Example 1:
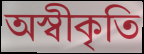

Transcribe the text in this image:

অস্বীকৃতি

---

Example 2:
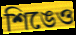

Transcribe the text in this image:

শিঙেও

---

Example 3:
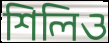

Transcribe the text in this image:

শিলিও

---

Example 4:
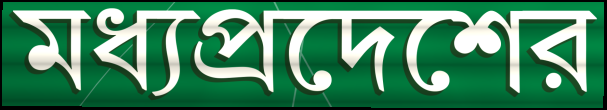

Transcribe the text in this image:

মধ্যপ্রদেশের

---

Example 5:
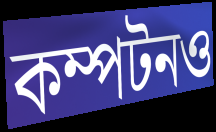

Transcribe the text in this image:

কম্পটনও